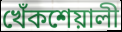
খেঁকশেয়ালী